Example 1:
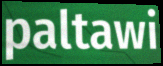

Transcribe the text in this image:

paltawi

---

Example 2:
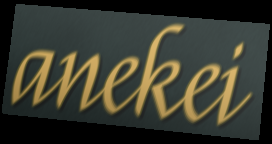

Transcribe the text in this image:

anekei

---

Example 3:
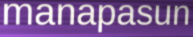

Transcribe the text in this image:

manapasun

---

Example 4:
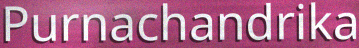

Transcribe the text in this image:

Purnachandrika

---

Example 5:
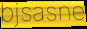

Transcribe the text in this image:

bjsasne